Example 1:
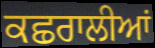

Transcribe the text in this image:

ਕਛਰਾਲੀਆਂ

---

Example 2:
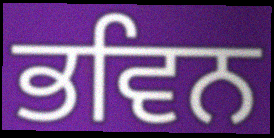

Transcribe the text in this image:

ਭਵਿਨ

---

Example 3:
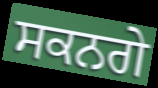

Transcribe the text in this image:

ਸਕਨਗੇ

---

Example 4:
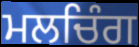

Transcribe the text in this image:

ਮਲਚਿੰਗ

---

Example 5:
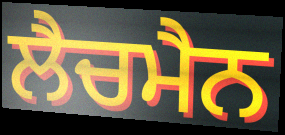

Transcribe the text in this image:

ਲੈਚਮੈਨ